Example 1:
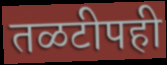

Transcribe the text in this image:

तळटीपही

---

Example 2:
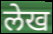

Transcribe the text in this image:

लेख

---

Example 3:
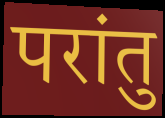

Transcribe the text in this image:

परांतु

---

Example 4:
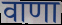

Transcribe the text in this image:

वाणा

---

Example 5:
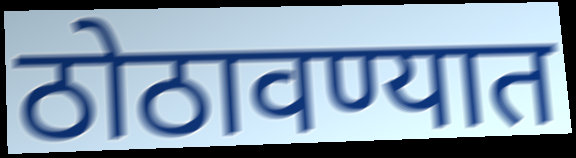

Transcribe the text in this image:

ठोठावण्यात